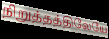
நிறுத்தத்திலேயே